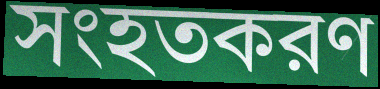
সংহতকরণ